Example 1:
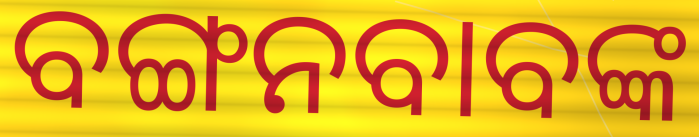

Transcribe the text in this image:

ବଙ୍ଗନବାବଙ୍କ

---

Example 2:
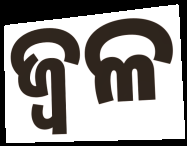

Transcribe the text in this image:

ଜ୍ୱଳ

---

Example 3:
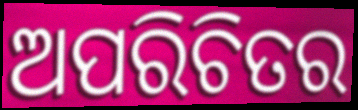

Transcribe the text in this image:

ଅପରିଚିତର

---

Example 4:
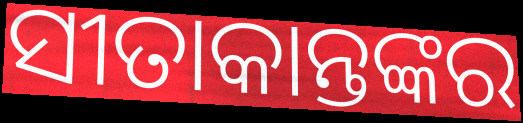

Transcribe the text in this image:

ସୀତାକାନ୍ତଙ୍କର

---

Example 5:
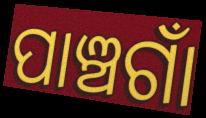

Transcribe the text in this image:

ପାଞ୍ଚଗାଁ